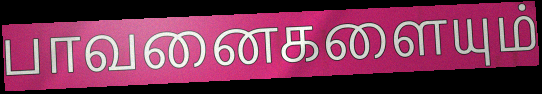
பாவனைகளையும்